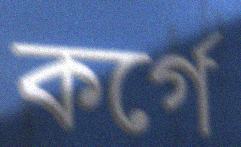
কর্গে